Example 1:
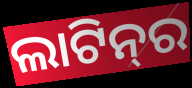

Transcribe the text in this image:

ଲାଟିନ୍‌ର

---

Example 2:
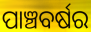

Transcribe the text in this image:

ପାଞ୍ଚବର୍ଷର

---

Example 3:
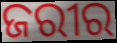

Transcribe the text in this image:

ଜରୀର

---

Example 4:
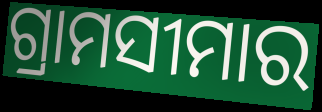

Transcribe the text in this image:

ଗ୍ରାମସୀମାର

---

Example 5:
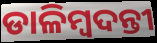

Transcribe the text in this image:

ଡାଳିମ୍ବଦନ୍ତୀ